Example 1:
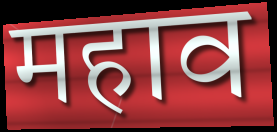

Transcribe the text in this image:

महाव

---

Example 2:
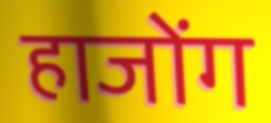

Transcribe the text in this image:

हाजोंग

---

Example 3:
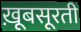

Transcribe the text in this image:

ख़ूबसूरती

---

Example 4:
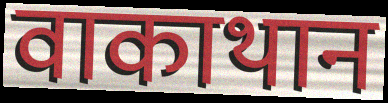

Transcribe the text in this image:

वाकाथान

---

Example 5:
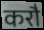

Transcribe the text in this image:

करौ